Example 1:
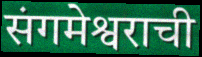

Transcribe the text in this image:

संगमेश्वराची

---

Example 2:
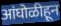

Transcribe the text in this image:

आंघोळीहून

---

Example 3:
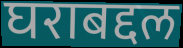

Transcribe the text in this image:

घराबद्दल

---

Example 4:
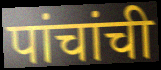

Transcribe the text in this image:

पांचांची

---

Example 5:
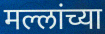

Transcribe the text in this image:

मल्लांच्या